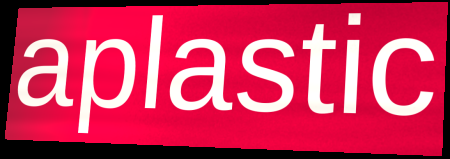
aplastic